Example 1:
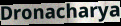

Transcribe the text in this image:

Dronacharya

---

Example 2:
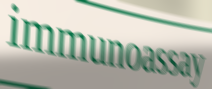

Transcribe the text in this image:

immunoassay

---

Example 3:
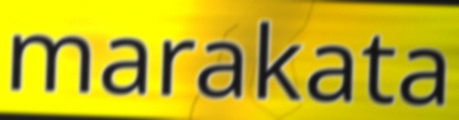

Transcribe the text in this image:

marakata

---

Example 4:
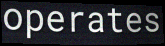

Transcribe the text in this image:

operates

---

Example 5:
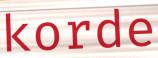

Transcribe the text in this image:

korde